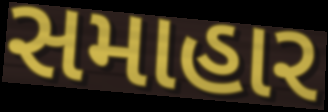
સમાહાર